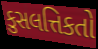
કુસલત્તિકતો